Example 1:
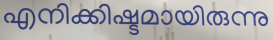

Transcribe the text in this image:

എനിക്കിഷ്ടമായിരുന്നു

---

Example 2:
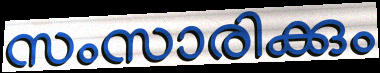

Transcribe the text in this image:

സംസാരിക്കും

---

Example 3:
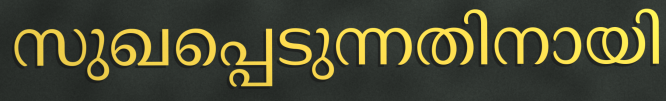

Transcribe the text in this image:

സുഖപ്പെടുന്നതിനായി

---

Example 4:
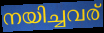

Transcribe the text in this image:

നയിച്ചവര്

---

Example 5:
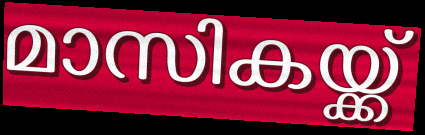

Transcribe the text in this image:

മാസികയ്ക്ക്